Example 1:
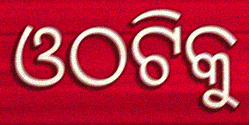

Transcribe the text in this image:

ଓଠଟିକୁ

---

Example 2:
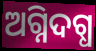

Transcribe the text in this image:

ଅଗ୍ନିଦଗ୍ଧ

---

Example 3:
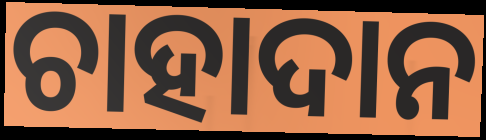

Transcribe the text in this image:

ଚାହାଦାନ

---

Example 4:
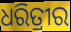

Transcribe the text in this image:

ଧରିତ୍ରୀର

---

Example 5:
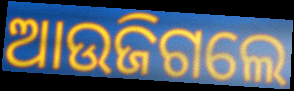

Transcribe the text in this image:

ଆଉଜିଗଲେ